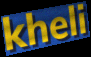
kheli